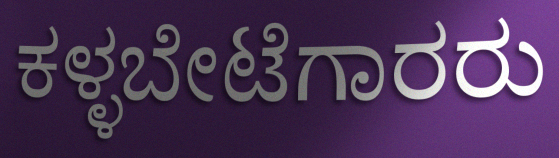
ಕಳ್ಳಬೇಟೆಗಾರರು